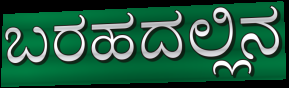
ಬರಹದಲ್ಲಿನ